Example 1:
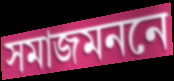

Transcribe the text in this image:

সমাজমননে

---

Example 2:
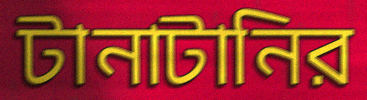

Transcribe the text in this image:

টানাটানির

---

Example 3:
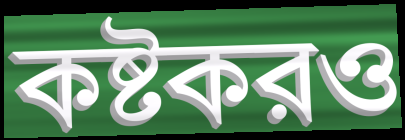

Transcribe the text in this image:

কষ্টকরও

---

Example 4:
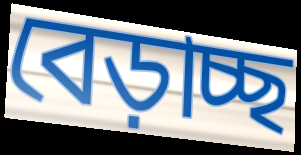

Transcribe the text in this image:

বেড়াচ্ছ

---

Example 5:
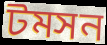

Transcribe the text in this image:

টমসন